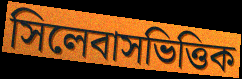
সিলেবাসভিত্তিক